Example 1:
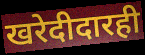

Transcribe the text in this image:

खरेदीदारही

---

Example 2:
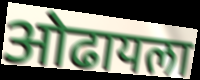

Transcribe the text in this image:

ओढायला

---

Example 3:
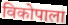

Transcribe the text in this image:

विकोपाला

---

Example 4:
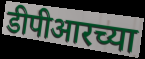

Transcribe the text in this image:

डीपीआरच्या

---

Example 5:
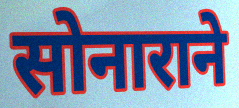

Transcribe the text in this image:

सोनाराने